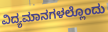
ವಿದ್ಯಮಾನಗಳಲ್ಲೊಂದು